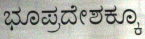
ಭೂಪ್ರದೇಶಕ್ಕೂ